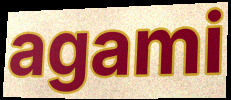
agami